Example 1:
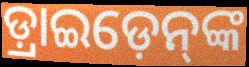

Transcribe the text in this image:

ଡ଼୍ରାଇଡ଼େନ୍‌ଙ୍କ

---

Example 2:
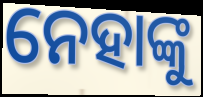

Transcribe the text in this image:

ନେହାଙ୍କୁ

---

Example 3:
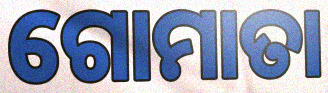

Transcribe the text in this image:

ଗୋମାତା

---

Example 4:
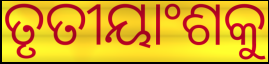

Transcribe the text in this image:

ତୃତୀୟାଂଶକୁ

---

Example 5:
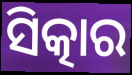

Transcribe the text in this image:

ସିତ୍କାର